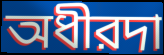
অধীরদা